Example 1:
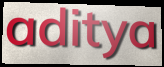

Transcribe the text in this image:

aditya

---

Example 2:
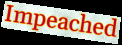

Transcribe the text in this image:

Impeached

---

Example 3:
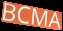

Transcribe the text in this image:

BCMA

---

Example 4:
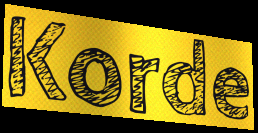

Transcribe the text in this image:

Korde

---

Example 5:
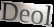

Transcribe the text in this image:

Deol